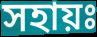
সহায়ঃ